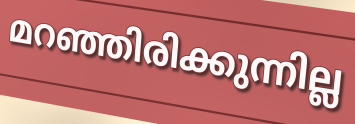
മറഞ്ഞിരിക്കുന്നില്ല